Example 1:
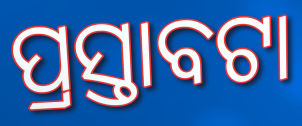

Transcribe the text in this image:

ପ୍ରସ୍ତାବଟା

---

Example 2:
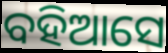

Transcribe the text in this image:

ବହିଆସେ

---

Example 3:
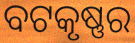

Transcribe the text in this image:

ବଟକୃଷ୍ଣର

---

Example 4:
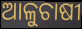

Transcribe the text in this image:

ଆଳୁଚାଷୀ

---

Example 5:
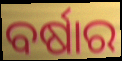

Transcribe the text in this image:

ବର୍ଷାର